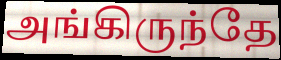
அங்கிருந்தே